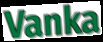
Vanka